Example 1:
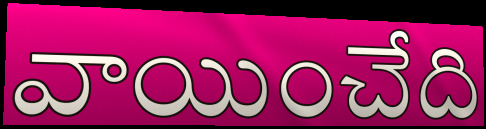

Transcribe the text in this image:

వాయించేది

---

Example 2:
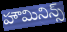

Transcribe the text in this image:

హౌమినిన్స్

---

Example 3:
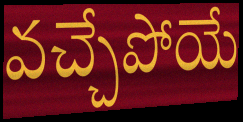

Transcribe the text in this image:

వచ్చేపోయే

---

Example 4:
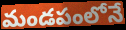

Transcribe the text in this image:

మండపంలోనే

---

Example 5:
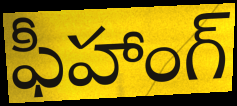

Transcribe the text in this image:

ఫీహాంగ్